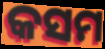
କସମ